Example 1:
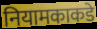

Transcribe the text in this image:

नियामकाकडे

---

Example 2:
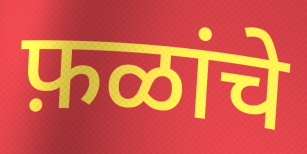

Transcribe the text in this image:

फ़ळांचे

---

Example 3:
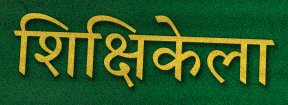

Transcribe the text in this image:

शिक्षिकेला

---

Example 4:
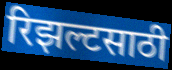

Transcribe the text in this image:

रिझल्टसाठी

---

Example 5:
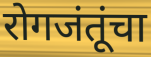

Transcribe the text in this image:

रोगजंतूंचा